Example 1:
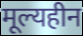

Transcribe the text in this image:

मूल्यहीन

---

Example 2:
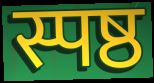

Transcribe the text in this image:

स्पष्ठ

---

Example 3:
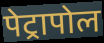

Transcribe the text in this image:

पेट्रापोल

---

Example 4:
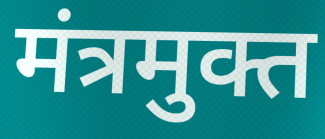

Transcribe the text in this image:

मंत्रमुक्त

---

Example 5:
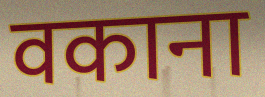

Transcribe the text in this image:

वकाना